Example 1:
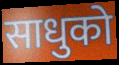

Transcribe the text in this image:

साधुको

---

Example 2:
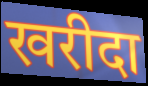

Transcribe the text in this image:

खरीदा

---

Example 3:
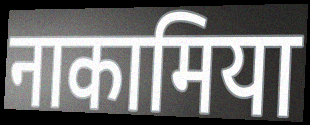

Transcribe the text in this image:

नाकामिया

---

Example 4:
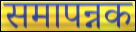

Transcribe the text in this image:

समापन्नक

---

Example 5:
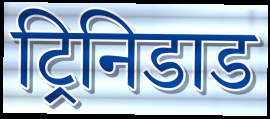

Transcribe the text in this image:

ट्रिनिडाड